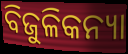
ବିଜୁଳିକନ୍ୟା